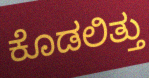
ಕೊಡಲಿತ್ತು